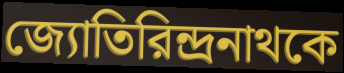
জ্যোতিরিন্দ্রনাথকে